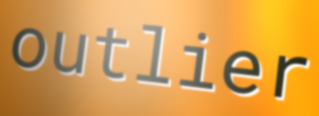
outlier